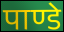
पाण्डे